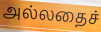
அல்லதைச்